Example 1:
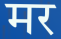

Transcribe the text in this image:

मर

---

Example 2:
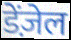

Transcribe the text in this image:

डेंज़ेल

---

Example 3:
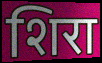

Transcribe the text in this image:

शिरा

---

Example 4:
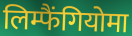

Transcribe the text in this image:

लिम्फैंगियोमा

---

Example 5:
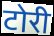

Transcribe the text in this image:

टोरी